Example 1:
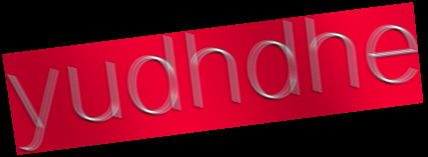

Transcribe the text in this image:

yudhdhe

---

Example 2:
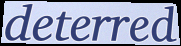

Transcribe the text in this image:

deterred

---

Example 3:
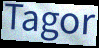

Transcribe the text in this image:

Tagor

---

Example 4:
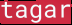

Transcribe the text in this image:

tagar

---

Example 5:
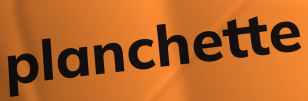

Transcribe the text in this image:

planchette